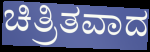
ಚಿತ್ರಿತವಾದ